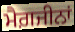
ਮੈਗ਼ਜੀਨਾਂ